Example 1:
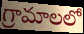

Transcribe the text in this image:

గ్రామాలలో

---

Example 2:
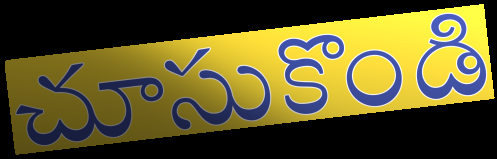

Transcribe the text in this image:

చూసుకొండి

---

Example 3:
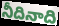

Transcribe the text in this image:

నీదినాది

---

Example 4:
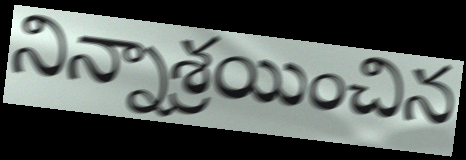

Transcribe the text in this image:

నిన్నాశ్రయించిన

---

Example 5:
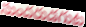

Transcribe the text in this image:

సుందరుడగుట